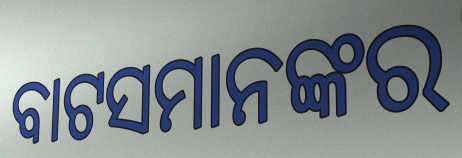
ବାଟସମାନଙ୍କର